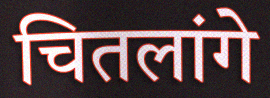
चितलांगे